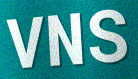
VNS